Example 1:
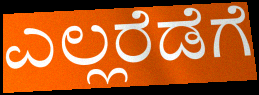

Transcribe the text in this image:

ಎಲ್ಲರೆಡೆಗೆ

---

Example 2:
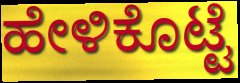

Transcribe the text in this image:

ಹೇಳಿಕೊಟ್ಟೆ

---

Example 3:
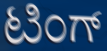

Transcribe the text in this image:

ಟಿಂಗ್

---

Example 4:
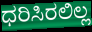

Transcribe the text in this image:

ಧರಿಸಿರಲಿಲ್ಲ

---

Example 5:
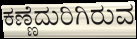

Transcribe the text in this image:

ಕಣ್ಣೆದುರಿಗಿರುವ